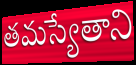
తమస్యేతాని